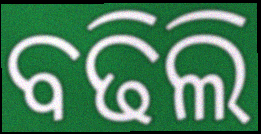
ବଢିଲି